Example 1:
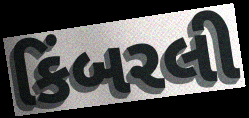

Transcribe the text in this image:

કિંબરલી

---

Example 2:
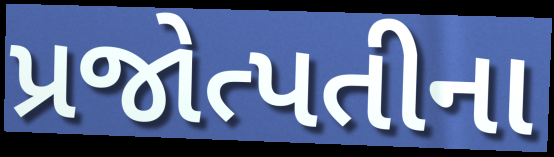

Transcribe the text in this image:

પ્રજોત્પતીના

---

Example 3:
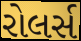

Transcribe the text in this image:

રોલર્સ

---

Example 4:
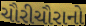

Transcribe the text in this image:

ચૌરીચૌરાનો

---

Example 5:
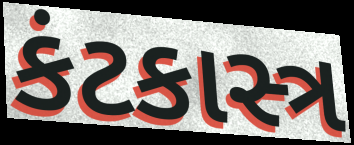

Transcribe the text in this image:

કંટકાસ્ત્ર